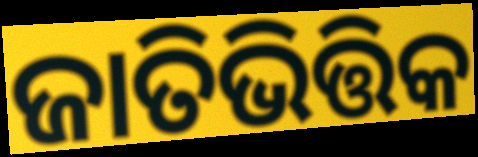
ଜାତିଭିତ୍ତିକ